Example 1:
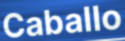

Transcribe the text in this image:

Caballo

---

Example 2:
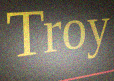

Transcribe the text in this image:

Troy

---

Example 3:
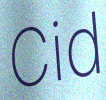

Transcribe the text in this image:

Cid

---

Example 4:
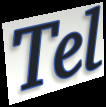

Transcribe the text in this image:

Tel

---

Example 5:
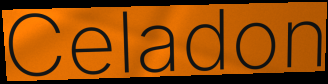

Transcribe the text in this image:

Celadon